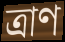
ত্রাণ